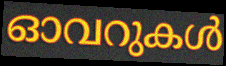
ഓവറുകൾ